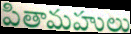
పితామహులు